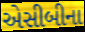
એસીબીના